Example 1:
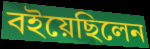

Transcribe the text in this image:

বইয়েছিলেন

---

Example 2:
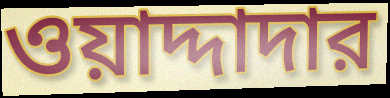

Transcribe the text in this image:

ওয়াদ্দাদার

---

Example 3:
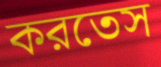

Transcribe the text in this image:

করতেস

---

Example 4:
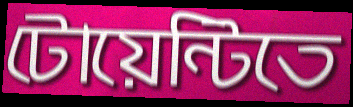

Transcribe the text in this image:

টোয়েন্টিতে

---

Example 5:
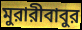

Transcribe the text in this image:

মুরারীবাবুর